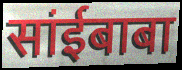
सांईबाबा